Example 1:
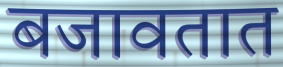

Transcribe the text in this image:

बजावतात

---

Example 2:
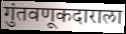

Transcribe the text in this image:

गुंतवणूकदाराला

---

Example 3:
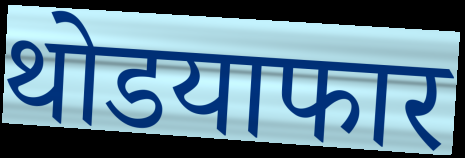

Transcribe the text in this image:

थोडयाफार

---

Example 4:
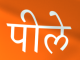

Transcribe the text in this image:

पीले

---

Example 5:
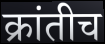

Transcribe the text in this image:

क्रांतीच